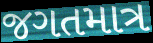
જગતમાત્ર